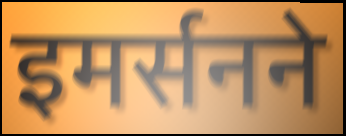
इमर्सनने